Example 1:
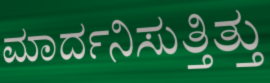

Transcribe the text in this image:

ಮಾರ್ದನಿಸುತ್ತಿತ್ತು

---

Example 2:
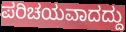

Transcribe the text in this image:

ಪರಿಚಯವಾದದ್ದು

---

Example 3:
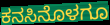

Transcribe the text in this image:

ಕನಸಿನೊಳಗೂ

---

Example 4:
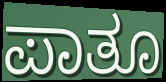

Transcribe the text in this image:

ಪಾತೂ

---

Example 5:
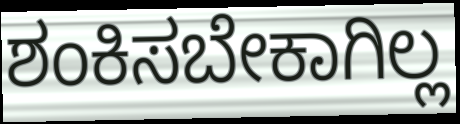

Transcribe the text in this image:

ಶಂಕಿಸಬೇಕಾಗಿಲ್ಲ